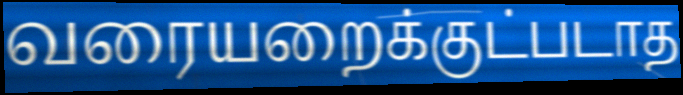
வரையறைக்குட்படாத